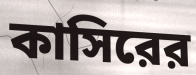
কাসিরের